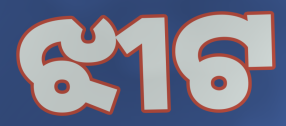
ଝୀଟ